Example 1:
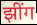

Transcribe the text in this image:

झींग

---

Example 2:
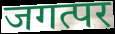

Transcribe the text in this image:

जगत्पर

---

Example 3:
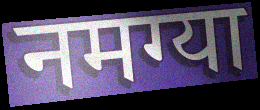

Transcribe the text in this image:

नमग्या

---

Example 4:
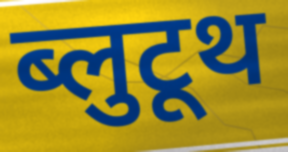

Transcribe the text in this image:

ब्लुटूथ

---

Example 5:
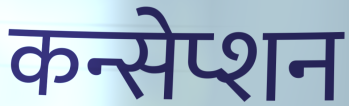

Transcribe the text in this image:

कन्सेप्शन